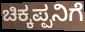
ಚಿಕ್ಕಪ್ಪನಿಗೆ